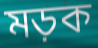
মড়ক